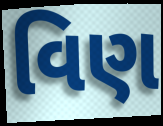
વિણ